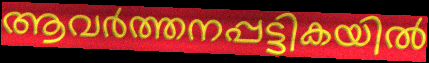
ആവർത്തനപ്പട്ടികയിൽ